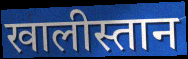
खालीस्तान